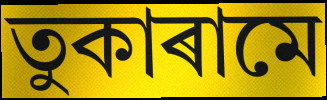
তুকাৰামে